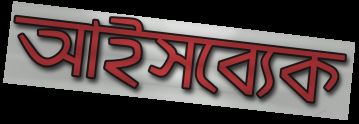
আইসব্যেক